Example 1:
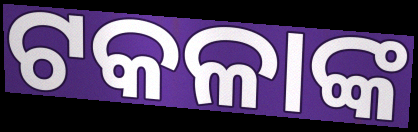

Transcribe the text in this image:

ଟକଳାଙ୍କ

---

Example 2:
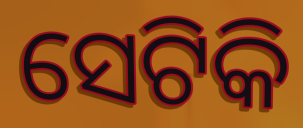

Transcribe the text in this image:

ସେଟିକି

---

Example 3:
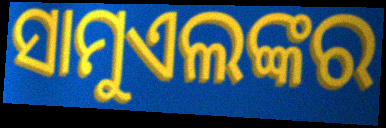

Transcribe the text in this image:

ସାମୁଏଲଙ୍କର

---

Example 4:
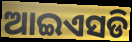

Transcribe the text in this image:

ଆଇଏସଡି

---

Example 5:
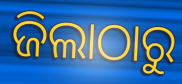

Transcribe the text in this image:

ଜିଲାଠାରୁ